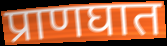
प्राणघात